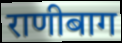
राणीबाग